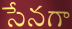
సేనగా